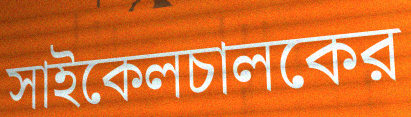
সাইকেলচালকের